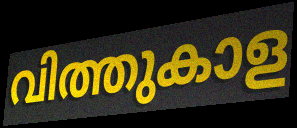
വിത്തുകാള